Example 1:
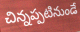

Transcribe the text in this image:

చిన్నప్పటినుండే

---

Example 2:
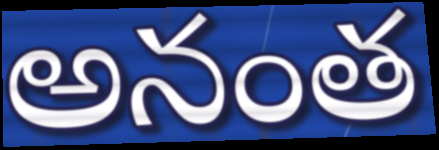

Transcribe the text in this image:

అనంత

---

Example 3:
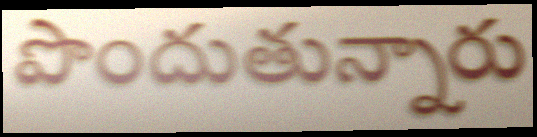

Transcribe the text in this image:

పొందుతున్నారు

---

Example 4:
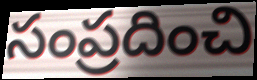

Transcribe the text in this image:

సంప్రదించి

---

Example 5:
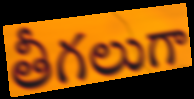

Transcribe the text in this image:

తీగలుగా